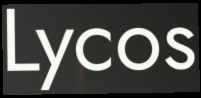
Lycos